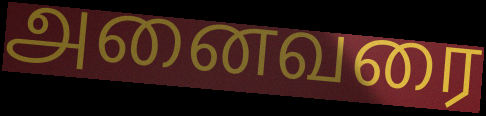
அனைவரை